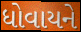
ધોવાયને